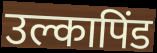
उल्‍कापिंड